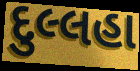
દુલ્લહા